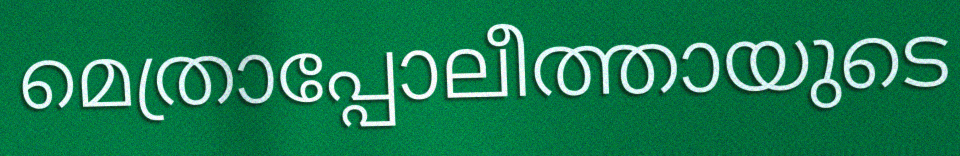
മെത്രാപ്പോലീത്തായുടെ